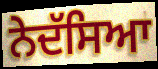
ਨੇਦੱਸਿਆ